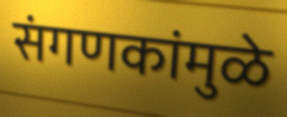
संगणकांमुळे